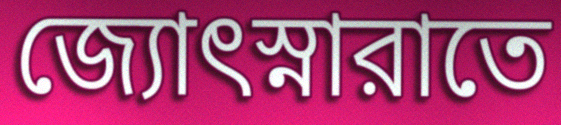
জ্যোৎস্নারাতে